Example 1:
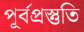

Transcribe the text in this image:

পূর্বপ্রস্তুতি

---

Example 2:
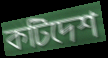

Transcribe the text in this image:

কটিদেশ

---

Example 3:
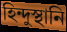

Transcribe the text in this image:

হিন্দুস্থানি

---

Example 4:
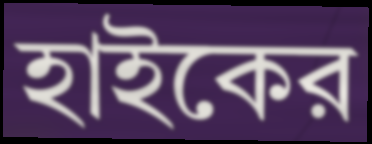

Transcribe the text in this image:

হাইকের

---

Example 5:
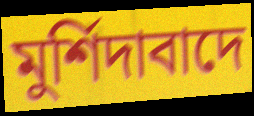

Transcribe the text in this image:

মুর্শিদাবাদে